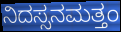
ನಿದಸ್ಸನಮತ್ತಂ